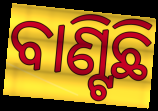
ବାଣ୍ଟିଛି